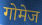
गोमेज